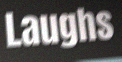
Laughs